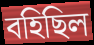
বহিছিল